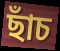
ছাঁচ